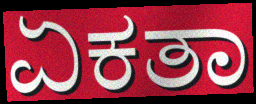
ಏಕತಾ